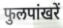
फुलपांखरें